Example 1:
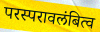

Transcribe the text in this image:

परस्परावलंबित्व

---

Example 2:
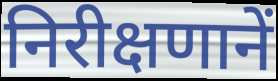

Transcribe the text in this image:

निरीक्षणानें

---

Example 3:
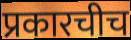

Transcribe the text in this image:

प्रकारचीच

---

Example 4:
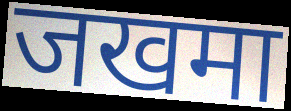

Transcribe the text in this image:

जखमा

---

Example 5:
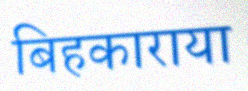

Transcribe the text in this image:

बिहकाराया